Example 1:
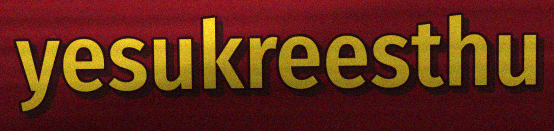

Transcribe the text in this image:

yesukreesthu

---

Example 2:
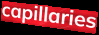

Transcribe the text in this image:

capillaries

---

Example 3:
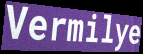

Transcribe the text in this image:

Vermilye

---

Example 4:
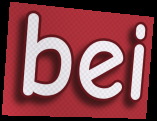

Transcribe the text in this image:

bei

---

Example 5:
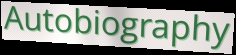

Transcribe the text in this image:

Autobiography